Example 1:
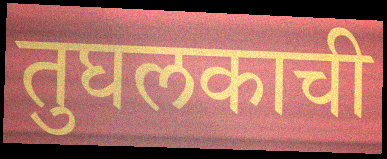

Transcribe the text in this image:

तुघलकाची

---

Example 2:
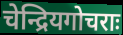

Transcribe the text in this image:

चेन्द्रियगोचराः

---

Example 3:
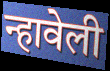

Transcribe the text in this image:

न्हावेली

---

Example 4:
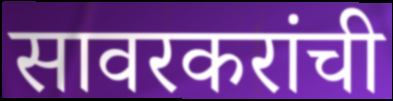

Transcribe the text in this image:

सावरकरांची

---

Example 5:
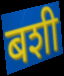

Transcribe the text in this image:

बशी